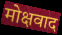
मोक्षवाद